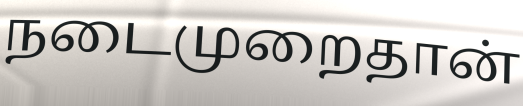
நடைமுறைதான்